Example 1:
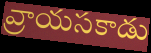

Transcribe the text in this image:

వ్రాయసకాడు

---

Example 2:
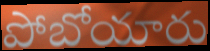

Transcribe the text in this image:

పోబోయారు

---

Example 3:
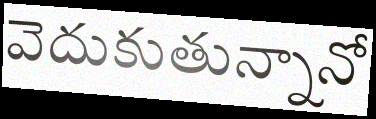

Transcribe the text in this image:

వెదుకుతున్నానో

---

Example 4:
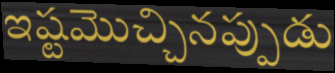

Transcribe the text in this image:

ఇష్టమొచ్చినప్పుడు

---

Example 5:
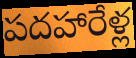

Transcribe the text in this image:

పదహారేళ్ల